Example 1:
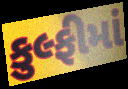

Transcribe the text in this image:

કુલ્ફીમાં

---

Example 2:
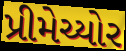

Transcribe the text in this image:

પ્રીમેચ્યોર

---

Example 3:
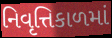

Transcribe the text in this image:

નિવૃત્તિકાળમાં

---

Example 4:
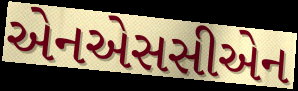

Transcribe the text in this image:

એનએસસીએન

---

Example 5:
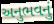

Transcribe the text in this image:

અનુભવનું